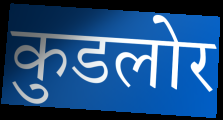
कुडलोर